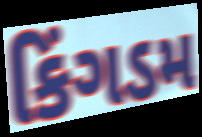
કિંગડમ